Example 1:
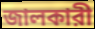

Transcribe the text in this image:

জালকারী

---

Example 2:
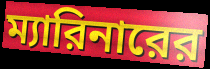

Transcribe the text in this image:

ম্যারিনারের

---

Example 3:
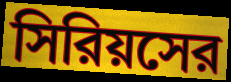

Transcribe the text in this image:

সিরিয়সের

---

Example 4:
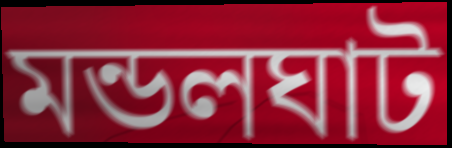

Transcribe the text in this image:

মন্ডলঘাট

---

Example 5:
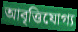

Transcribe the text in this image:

আবৃত্তিযোগ্য